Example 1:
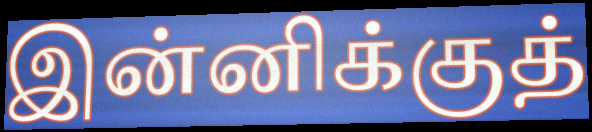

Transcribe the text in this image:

இன்னிக்குத்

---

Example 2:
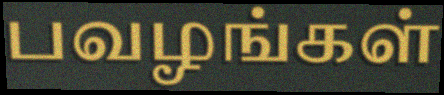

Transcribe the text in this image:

பவழங்கள்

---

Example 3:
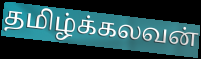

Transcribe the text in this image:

தமிழ்க்கலவன்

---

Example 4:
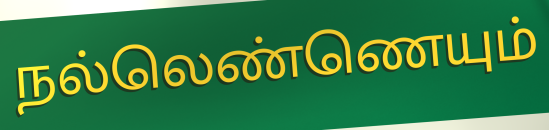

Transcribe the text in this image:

நல்லெண்ணெயும்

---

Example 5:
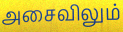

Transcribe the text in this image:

அசைவிலும்